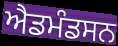
ਐਡਮੰਡਸਨ